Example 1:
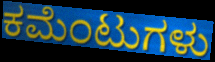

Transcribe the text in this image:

ಕಮೆಂಟುಗಳು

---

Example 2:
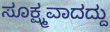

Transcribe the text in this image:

ಸೂಕ್ಷ್ಮವಾದದ್ದು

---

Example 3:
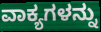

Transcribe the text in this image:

ವಾಕ್ಯಗಳನ್ನು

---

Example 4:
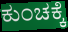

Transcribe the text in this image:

ಕುಂಚಕ್ಕೆ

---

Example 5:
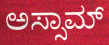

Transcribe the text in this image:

ಅಸ್ಸಾಮ್